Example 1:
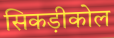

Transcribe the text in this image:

सिकड़ीकोल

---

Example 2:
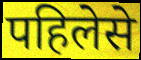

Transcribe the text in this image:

पहिलेसे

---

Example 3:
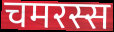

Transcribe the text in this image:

चमरस्स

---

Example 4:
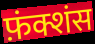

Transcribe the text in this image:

फ़ंक्शंस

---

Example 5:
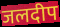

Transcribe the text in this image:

जलदीप